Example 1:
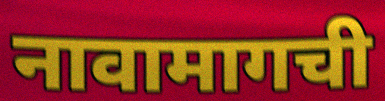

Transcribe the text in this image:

नावामागची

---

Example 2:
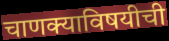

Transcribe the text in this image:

चाणक्याविषयीची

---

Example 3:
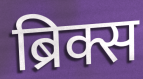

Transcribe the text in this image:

ब्रिक्स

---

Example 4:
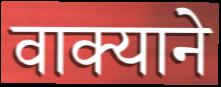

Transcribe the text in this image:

वाक्याने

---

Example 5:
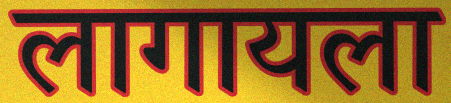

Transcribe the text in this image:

लागायला